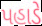
પહાડે